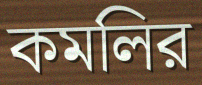
কমলির